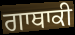
ਗਾਥਾਕੀ